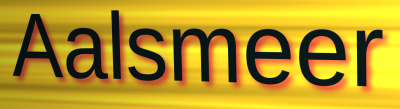
Aalsmeer